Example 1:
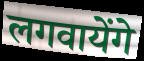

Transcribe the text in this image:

लगवायेंगे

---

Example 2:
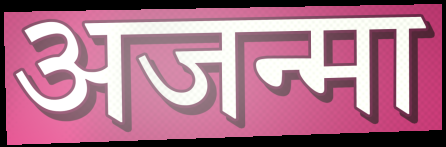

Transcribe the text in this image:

अजन्‍मा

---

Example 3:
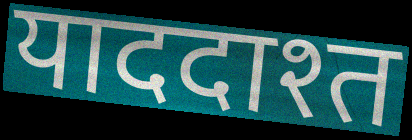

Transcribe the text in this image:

याददाश्त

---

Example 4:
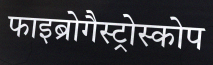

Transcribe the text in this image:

फाइब्रोगैस्ट्रोस्कोप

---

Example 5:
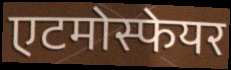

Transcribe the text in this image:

एटमोस्फेयर